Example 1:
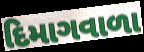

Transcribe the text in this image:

દિમાગવાળા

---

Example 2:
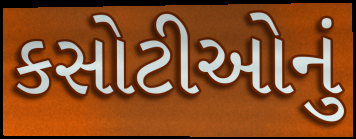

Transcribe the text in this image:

કસોટીઓનું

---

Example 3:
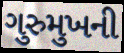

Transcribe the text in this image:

ગુરુમુખની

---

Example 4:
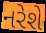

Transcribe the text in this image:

નરેશે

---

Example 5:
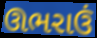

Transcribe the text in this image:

ઊભરાઉં